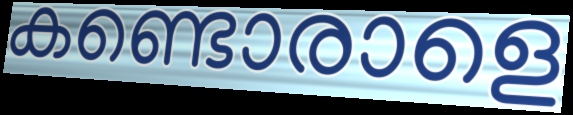
കണ്ടൊരാളെ